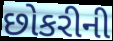
છોકરીની